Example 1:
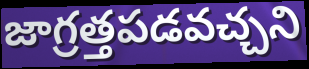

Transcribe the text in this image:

జాగ్రత్తపడవచ్చని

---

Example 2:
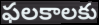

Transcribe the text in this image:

ఫలకాలకు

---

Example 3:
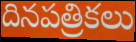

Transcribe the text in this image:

దినపత్రికలు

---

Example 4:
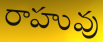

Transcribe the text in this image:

రాహువు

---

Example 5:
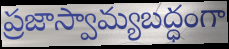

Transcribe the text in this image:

ప్రజాస్వామ్యబద్ధంగా